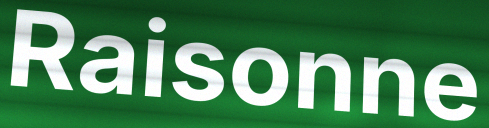
Raisonne